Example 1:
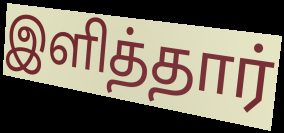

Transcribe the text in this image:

இளித்தார்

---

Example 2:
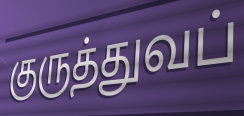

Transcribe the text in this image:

குருத்துவப்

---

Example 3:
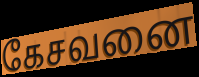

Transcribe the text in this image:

கேசவனை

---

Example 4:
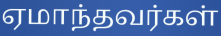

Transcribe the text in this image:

ஏமாந்தவர்கள்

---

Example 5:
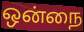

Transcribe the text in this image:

ஒன்நை